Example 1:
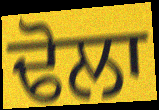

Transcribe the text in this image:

ਢੋਲਾ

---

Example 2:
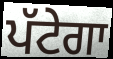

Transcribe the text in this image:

ਪੱਟੇਗਾ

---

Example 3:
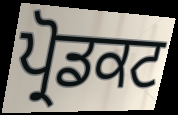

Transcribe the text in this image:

ਪ੍ਰੋਡਕਟ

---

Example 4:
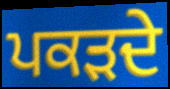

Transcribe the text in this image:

ਪਕੜਦੇ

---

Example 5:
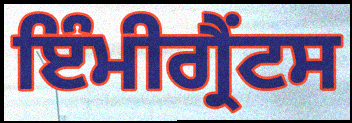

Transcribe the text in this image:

ਇੰਮੀਗ੍ਰੈਂਟਸ